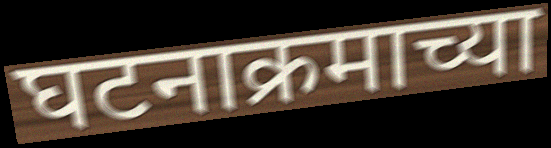
घटनाक्रमाच्या